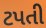
ટપતી